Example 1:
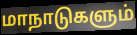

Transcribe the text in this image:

மாநாடுகளும்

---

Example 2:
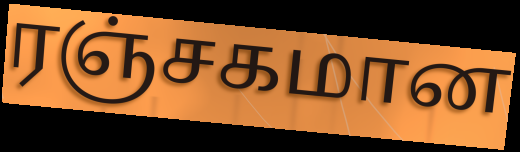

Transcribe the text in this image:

ரஞ்சகமான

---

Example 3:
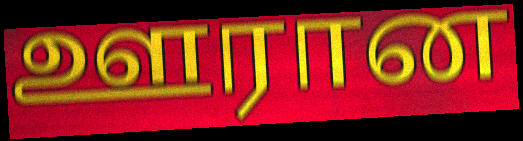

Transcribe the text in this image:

ஊரான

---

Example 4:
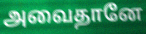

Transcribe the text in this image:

அவைதானே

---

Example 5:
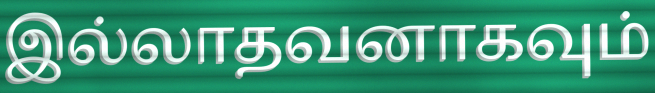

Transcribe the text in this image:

இல்லாதவனாகவும்